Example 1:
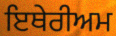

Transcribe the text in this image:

ਇਥੇਰੀਅਮ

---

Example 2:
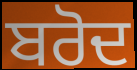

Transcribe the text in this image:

ਬਰੋਦ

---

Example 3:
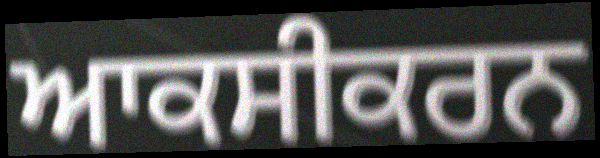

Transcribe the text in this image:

ਆਕਸੀਕਰਨ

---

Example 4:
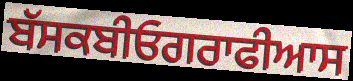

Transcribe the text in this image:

ਬੱਸਕਬੀਓਗਰਾਫੀਆਸ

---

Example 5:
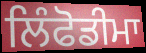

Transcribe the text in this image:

ਲਿੰਫੋਡੀਮਾ